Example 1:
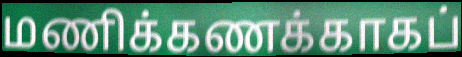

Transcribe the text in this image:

மணிக்கணக்காகப்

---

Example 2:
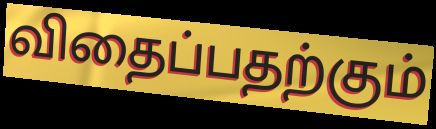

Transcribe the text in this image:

விதைப்பதற்கும்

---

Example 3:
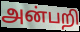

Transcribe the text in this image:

அன்பறி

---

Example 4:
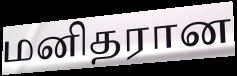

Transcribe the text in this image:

மனிதரான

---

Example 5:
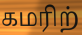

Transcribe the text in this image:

கமரிற்